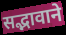
सद्भावाने